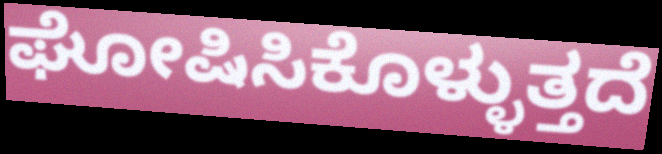
ಘೋಷಿಸಿಕೊಳ್ಳುತ್ತದೆ